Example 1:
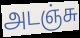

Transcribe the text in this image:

அடஞ்சு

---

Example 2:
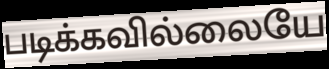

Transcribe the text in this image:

படிக்கவில்லையே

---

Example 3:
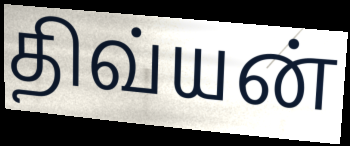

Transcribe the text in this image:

திவ்யன்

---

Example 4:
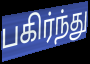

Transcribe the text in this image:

பகிர்ந்து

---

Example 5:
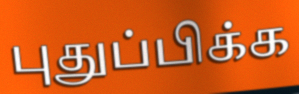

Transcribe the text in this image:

புதுப்பிக்க